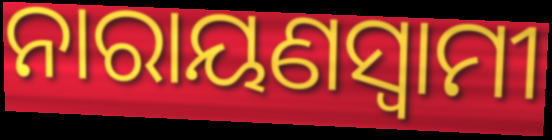
ନାରାୟଣସ୍ଵାମୀ